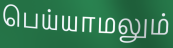
பெய்யாமலும்